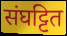
संघट्टित